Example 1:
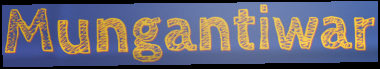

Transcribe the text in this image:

Mungantiwar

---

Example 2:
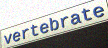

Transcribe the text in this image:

vertebrate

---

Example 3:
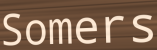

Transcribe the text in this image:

Somers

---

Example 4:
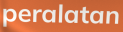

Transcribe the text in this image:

peralatan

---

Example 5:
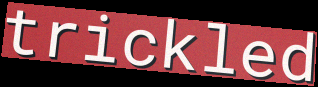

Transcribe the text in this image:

trickled